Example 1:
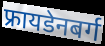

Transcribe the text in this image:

फ्रायडेनबर्ग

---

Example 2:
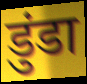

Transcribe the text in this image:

डुंडा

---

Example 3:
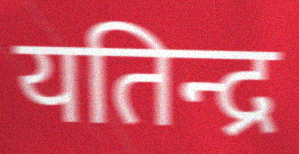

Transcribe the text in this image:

यतिन्द्र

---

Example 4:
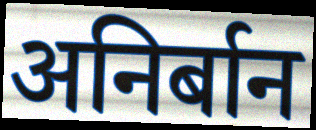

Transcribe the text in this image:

अनिर्बान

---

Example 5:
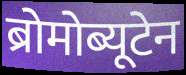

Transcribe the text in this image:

ब्रोमोब्यूटेन